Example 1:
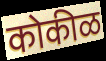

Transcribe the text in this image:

कोकीळ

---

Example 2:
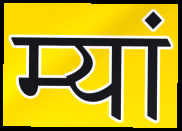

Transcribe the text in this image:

म्यां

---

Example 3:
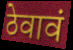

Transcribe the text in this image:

ठेवावं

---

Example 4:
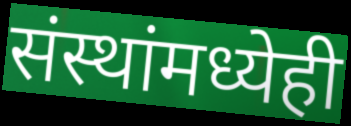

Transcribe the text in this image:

संस्थांमध्येही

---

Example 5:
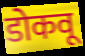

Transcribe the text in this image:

डोकवू